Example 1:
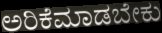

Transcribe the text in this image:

ಅರಿಕೆಮಾಡಬೇಕು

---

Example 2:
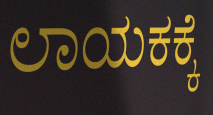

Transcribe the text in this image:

ಲಾಯಕಕ್ಕೆ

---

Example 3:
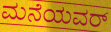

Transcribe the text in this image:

ಮನೆಯವರ್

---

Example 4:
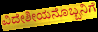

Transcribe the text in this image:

ವಿದೇಶೀಯನೊಬ್ಬನಿಗೆ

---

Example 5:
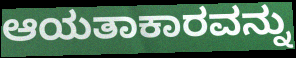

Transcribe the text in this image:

ಆಯತಾಕಾರವನ್ನು